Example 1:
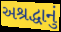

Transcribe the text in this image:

અશ્રદ્ધાનું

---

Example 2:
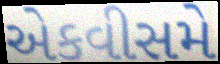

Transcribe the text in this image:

એકવીસમે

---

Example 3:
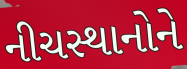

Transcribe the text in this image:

નીચસ્થાનોને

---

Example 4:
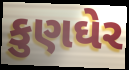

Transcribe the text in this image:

કુણઘેર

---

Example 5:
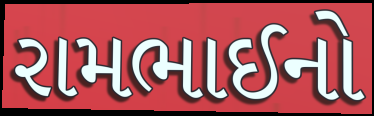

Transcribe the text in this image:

રામભાઈનો